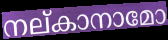
നല്കാനാമോ